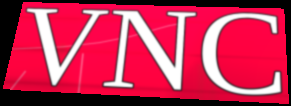
VNC